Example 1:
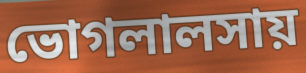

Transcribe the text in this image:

ভোগলালসায়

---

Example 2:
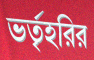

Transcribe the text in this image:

ভর্তৃহরির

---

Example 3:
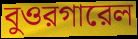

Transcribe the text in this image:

বুওরগারেল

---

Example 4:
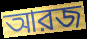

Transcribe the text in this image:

আরজ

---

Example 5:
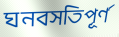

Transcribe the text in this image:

ঘনবসতিপূর্ণ